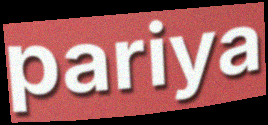
pariya